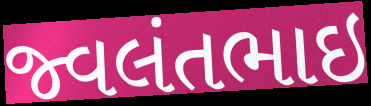
જ્વલંતભાઇ